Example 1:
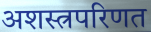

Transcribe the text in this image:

अशस्त्रपरिणत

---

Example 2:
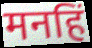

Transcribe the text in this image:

मनहिं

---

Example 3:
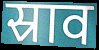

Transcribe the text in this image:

स्राव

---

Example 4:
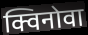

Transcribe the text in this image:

क्विनोवा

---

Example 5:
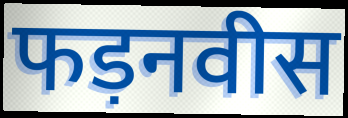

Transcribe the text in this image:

फड़नवीस